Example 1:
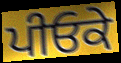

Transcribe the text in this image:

ਪੀਓਕੇ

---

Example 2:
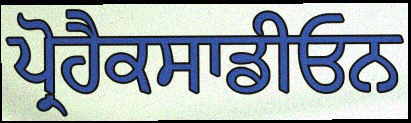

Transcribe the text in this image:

ਪ੍ਰੋਹੈਕਸਾਡੀਓਨ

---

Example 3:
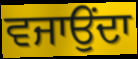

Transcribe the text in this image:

ਵਜਾਉਂਦਾ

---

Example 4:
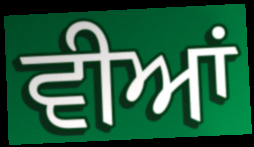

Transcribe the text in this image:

ਵੀਆਂ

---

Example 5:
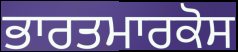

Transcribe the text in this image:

ਭਾਰਤਮਾਰਕੋਸ